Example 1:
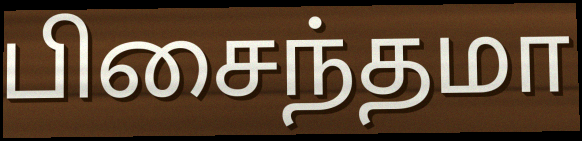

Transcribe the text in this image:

பிசைந்தமா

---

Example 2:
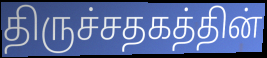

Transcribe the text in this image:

திருச்சதகத்தின்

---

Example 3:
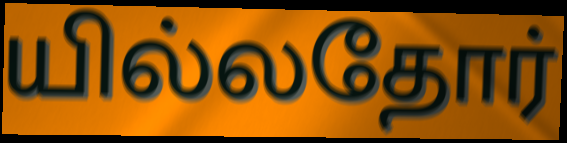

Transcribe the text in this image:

யில்லதோர்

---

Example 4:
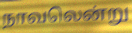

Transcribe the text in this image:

நாவலென்று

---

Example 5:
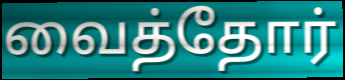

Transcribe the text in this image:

வைத்தோர்